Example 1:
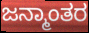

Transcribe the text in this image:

ಜನ್ಮಾಂತರ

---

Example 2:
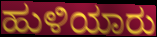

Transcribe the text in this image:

ಹುಳಿಯಾರು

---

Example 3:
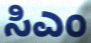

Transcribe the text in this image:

ಸಿಎಂ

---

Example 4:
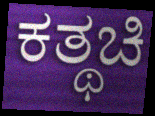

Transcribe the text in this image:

ಕತ್ಥಚಿ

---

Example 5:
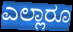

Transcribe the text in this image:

ಎಲ್ಲಾರೂ